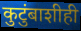
कुटुंबाशीही